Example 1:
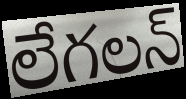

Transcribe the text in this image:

లేగలన్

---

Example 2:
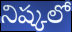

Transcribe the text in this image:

నిష్కలో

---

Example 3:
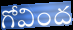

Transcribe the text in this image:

గోవింద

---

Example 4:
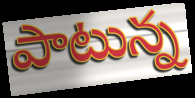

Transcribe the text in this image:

పాటున్న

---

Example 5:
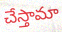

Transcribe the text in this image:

చేస్తామా